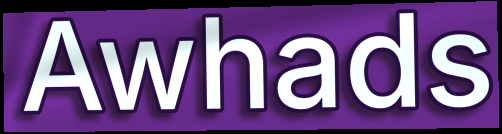
Awhads